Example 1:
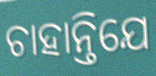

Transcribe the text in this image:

ଚାହାନ୍ତିଯେ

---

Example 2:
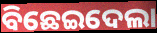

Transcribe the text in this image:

ବିଛେଇଦେଲା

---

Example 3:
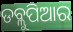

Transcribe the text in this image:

ଡବ୍ଲୁପିଆର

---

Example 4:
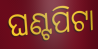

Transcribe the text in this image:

ଘଣ୍ଟପିଟା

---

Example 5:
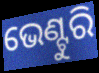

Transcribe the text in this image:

ଭେଣ୍ଟୁରି